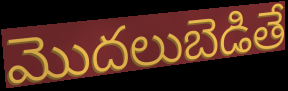
మొదలుబెడితే